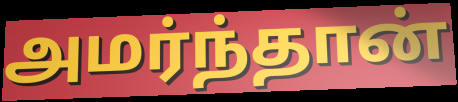
அமர்ந்தான்